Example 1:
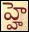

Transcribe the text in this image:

హ్హె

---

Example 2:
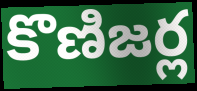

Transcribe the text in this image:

కొణిజర్ల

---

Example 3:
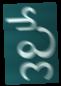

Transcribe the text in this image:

ప్లే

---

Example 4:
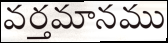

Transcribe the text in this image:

వర్తమానము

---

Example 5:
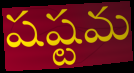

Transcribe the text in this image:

షష్టమ